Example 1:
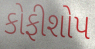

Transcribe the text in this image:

કોફીશોપ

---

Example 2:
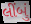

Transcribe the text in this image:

લીંબું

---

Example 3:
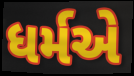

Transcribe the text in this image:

ધર્મએ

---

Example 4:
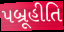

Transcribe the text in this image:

પબ્રૂહીતિ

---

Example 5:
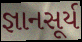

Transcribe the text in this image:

જ્ઞાનસૂર્ય